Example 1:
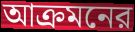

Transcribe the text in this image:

আক্রমনের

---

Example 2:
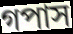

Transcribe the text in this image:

গপাস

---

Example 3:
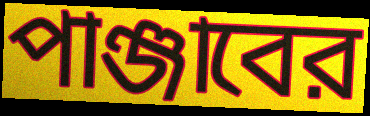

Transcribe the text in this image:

পাঞ্জাবের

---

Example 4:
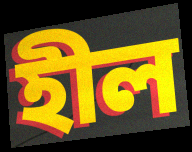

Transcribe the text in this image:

হীল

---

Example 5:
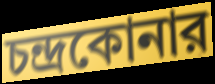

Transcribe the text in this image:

চন্দ্রকোনার